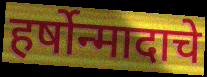
हर्षोन्मादाचे